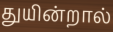
துயின்றால்